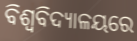
ବିଶ୍ବବିଦ୍ୟାଳୟରେ